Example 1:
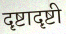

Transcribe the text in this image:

दृष्टादृष्टी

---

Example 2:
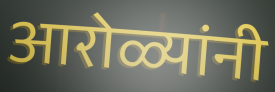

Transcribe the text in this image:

आरोळ्यांनी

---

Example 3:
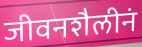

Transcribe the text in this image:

जीवनशैलीनं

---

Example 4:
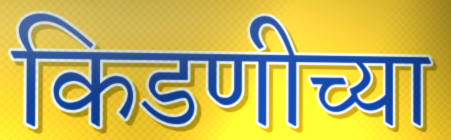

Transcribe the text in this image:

किडणीच्या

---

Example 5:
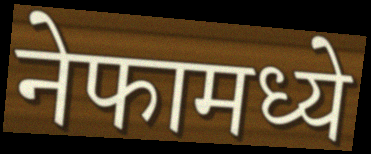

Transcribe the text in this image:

नेफामध्ये